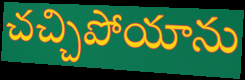
చచ్చిపోయాను